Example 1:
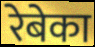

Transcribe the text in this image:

रेबेका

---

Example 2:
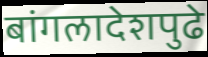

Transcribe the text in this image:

बांगलादेशपुढे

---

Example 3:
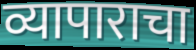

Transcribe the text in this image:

व्यापाराचा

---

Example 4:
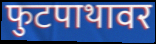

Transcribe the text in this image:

फुटपाथावर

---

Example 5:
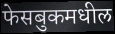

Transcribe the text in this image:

फेसबुकमधील